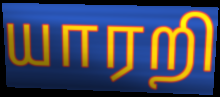
யாரறி